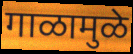
गाळामुळे